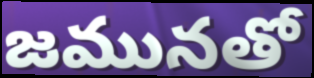
జమునతో